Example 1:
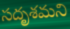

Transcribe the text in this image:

సదృశమని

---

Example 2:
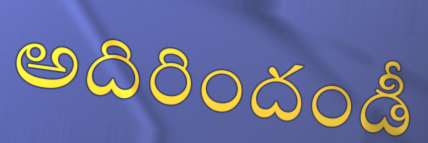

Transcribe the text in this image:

అదిరిందండీ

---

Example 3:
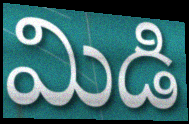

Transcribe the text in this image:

మిడి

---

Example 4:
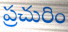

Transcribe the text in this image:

ప్రచురిం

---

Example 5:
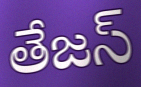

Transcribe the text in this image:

తేజస్